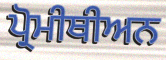
ਪ੍ਰੋਮੀਥੀਅਨ